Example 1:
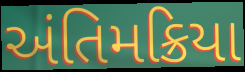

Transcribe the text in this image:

અંતિમક્રિયા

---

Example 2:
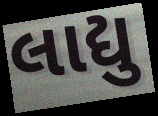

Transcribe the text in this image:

લાદ્યુ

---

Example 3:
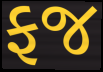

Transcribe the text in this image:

ફજ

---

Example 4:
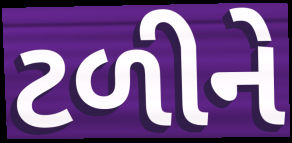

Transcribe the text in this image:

ટળીને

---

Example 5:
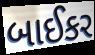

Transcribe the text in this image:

બાઈકર